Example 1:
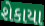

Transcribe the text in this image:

શેકાયા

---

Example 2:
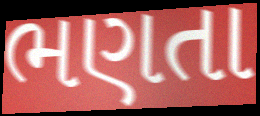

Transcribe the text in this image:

ભણતા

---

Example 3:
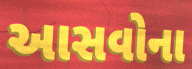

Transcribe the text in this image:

આસવોના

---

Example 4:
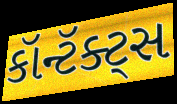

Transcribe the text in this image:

કૉન્ટૅક્ટ્સ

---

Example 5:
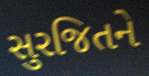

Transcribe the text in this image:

સુરજિતને